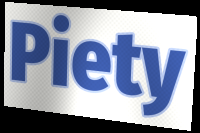
Piety